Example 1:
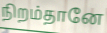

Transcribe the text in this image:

நிறம்தானே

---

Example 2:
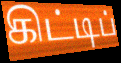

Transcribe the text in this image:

கிட்டிப்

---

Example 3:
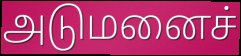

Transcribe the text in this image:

அடுமனைச்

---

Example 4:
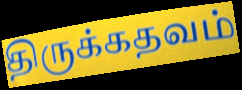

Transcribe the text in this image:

திருக்கதவம்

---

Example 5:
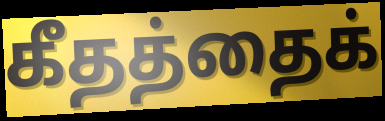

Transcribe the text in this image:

கீதத்தைக்